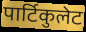
पार्टिकुलेट